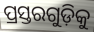
ପ୍ରସ୍ତରଗୁଡ଼ିକୁ